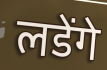
लडेंगे